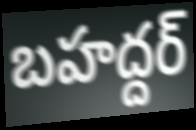
బహద్దర్